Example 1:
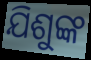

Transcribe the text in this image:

ଯିଶୁଙ୍କ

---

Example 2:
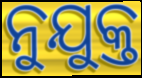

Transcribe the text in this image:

ନୁଯୁକ୍ତ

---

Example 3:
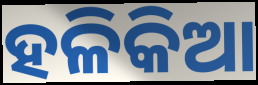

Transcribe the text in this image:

ହଳିକିଆ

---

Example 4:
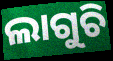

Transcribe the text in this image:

ଲାଗୁଚି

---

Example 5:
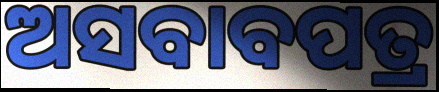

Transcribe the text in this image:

ଅସବାବପତ୍ର